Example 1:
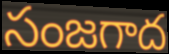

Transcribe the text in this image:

సంజగాద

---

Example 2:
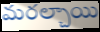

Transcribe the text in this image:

మరల్చాయి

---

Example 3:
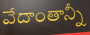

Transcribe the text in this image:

వేదాంతాన్నీ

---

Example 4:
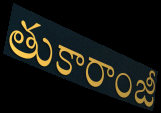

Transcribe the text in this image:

తుకారాంజీ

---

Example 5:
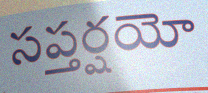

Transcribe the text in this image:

సప్తర్షయో